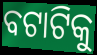
ବଟାଟିକୁ